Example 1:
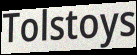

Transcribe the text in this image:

Tolstoys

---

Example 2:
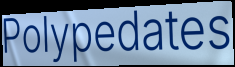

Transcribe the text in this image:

Polypedates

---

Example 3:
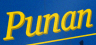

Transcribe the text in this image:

Punan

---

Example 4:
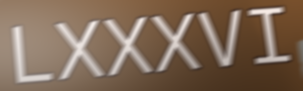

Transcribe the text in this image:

LXXXVI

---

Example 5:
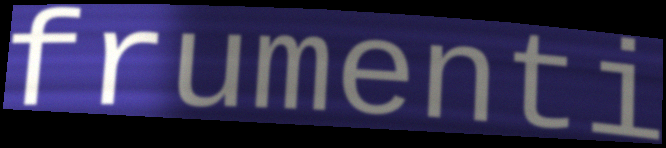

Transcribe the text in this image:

frumenti